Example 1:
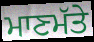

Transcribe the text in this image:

ਮਾਣਮੱਤੇ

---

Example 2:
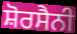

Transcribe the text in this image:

ਸ਼ੋਰਸੈਨੀ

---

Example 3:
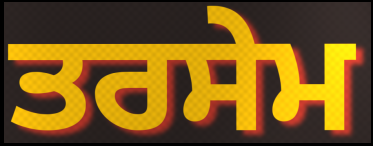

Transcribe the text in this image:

ਤਰਸੇਮ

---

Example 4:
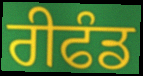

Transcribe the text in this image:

ਰੀਫੰਡ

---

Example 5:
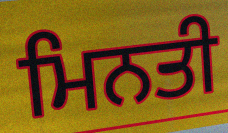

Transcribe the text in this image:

ਮਿਨਤੀ